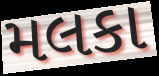
મલકા